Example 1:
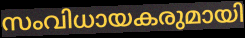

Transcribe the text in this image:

സംവിധായകരുമായി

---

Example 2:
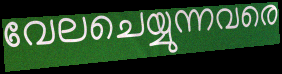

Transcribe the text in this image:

വേലചെയ്യുന്നവരെ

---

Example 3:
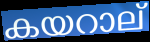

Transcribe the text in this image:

കയറാല്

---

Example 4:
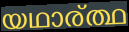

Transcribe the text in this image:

യഥാര്ത്ഥ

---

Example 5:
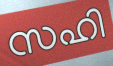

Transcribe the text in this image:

സഹി